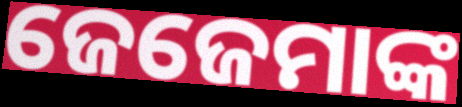
ଜେଜେମାଙ୍କ